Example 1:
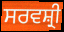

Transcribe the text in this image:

ਸਰਵਸ਼੍ਰੀ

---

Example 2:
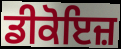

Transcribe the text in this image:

ਡੀਕੋਇਜ਼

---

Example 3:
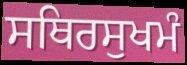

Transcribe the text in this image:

ਸਥਿਰਸੁਖਮੰ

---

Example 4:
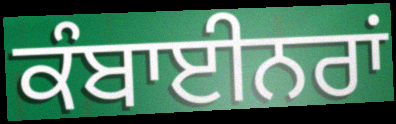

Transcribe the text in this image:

ਕੰਬਾਈਨਰਾਂ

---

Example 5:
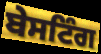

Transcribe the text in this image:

ਬੇਸਟਿੰਗ